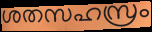
ശതസഹസ്രം